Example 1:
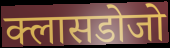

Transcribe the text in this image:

क्लासडोजो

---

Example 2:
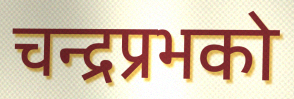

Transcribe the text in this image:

चन्द्रप्रभको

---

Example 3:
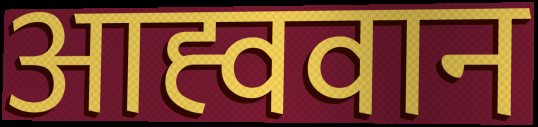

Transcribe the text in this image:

आह्ववान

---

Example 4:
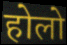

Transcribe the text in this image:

होलो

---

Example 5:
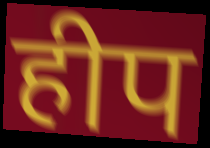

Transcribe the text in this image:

हीप